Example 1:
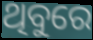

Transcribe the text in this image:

ଥିବୁରେ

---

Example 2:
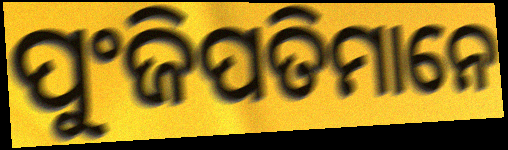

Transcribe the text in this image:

ପୁଂଜିପତିମାନେ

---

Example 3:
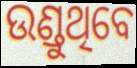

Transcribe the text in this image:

ଉଣ୍ଡୁଥିବେ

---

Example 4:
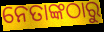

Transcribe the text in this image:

ନେତାଙ୍କଠାରୁ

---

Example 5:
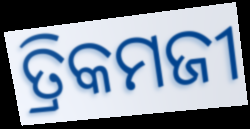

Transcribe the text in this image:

ତ୍ରିକମଜୀ